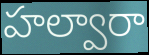
హల్వారా